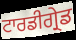
ਟਾਰਡੀਗ੍ਰੇਡ